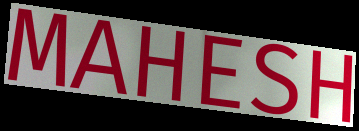
MAHESH